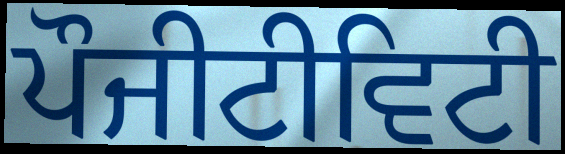
ਪੌਜੀਟੀਵਿਟੀ